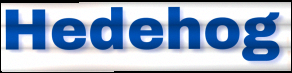
Hedehog